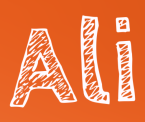
Ali